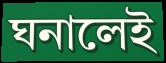
ঘনালেই